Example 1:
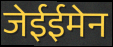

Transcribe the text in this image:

जेईईमेन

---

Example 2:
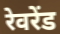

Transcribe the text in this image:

रेवरेंड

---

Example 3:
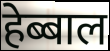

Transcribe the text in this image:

हेब्बाल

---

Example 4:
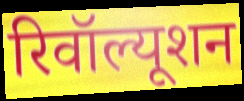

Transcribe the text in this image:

रिवॉल्यूशन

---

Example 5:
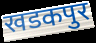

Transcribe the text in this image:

खडकपुर